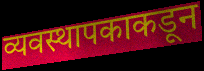
व्यवस्थापकाकडून